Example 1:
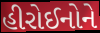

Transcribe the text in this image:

હીરોઈનોને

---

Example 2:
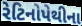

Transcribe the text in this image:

રેટિનોપેથીના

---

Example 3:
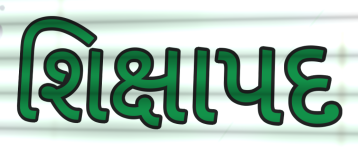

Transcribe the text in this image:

શિક્ષાપદ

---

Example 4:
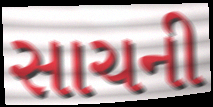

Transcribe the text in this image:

સાચની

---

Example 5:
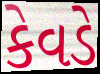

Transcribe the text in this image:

કેવડે